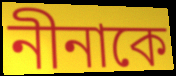
নীনাকে